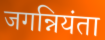
जगन्नियंता